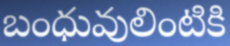
బంధువులింటికి